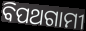
ବିପଥଗାମୀ